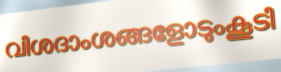
വിശദാംശങ്ങളോടുംകൂടി